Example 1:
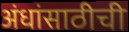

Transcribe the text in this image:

अंधांसाठीची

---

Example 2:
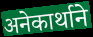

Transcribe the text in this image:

अनेकार्थाने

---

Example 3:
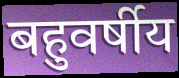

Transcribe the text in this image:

बहुवर्षीय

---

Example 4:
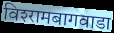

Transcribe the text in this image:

विश्रामबागवाडा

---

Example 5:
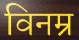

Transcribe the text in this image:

विनम्र